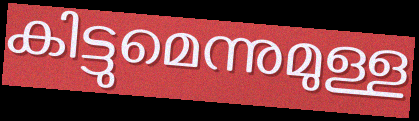
കിട്ടുമെന്നുമുള്ള